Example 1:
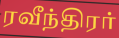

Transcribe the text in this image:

ரவீந்திரர்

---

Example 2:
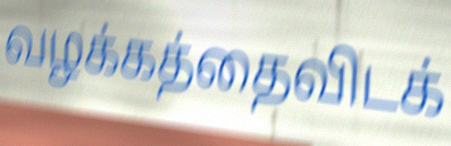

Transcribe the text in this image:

வழக்கத்தைவிடக்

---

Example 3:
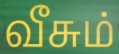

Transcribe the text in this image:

வீசும்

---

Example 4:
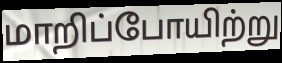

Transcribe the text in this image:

மாறிப்போயிற்று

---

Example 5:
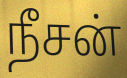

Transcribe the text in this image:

நீசன்